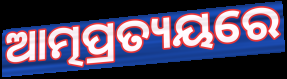
ଆତ୍ମପ୍ରତ୍ୟୟରେ